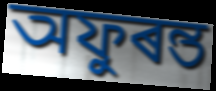
অফুৰন্ত